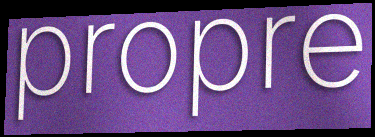
propre